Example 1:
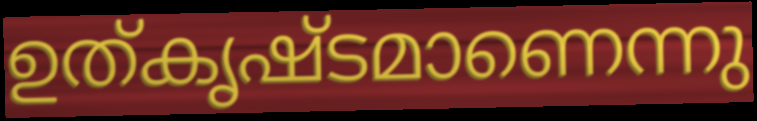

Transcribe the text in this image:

ഉത്കൃഷ്ടമാണെന്നു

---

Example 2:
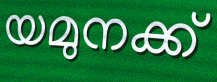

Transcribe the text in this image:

യമുനക്ക്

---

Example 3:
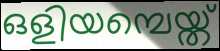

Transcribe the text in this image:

ഒളിയമ്പെയ്ത്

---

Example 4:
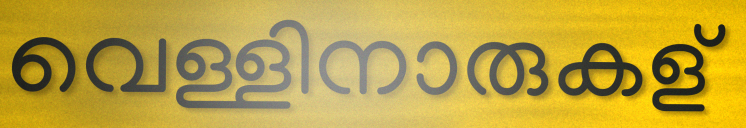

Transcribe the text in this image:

വെള്ളിനാരുകള്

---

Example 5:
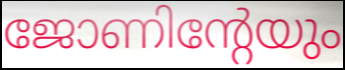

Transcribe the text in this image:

ജോണിന്റേയും